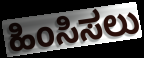
ಹಿಂಸಿಸಲು